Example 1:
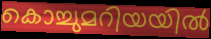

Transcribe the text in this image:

കൊച്ചുമറിയയിൽ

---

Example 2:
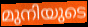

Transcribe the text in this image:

മുനിയുടെ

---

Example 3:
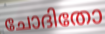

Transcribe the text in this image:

ചോദിതോ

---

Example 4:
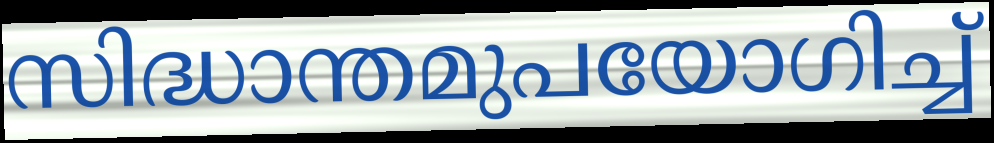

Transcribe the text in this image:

സിദ്ധാന്തമുപയോഗിച്ച്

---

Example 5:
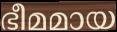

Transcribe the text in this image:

ഭീമമായ